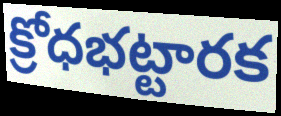
క్రోధభట్టారక